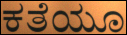
ಕತೆಯೂ